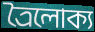
ত্রৈলোক্য